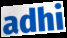
adhi